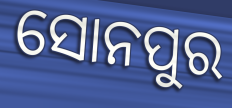
ସୋନପୁର